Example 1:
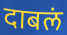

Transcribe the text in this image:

दाबलं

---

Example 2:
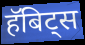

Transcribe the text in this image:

हॅबिट्स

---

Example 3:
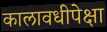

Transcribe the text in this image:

कालावधीपेक्षा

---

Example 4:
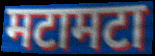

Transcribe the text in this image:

मटामटा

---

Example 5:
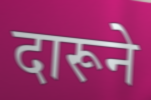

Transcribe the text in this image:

दारूने